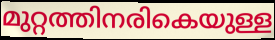
മുറ്റത്തിനരികെയുള്ള